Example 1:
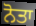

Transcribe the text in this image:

ਨੋਤਾ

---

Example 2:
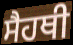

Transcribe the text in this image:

ਸੈਹਥੀ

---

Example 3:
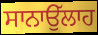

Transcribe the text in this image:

ਸਾਨਾਉੱਲਾਹ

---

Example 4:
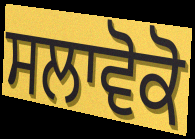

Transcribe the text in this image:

ਸਲਾਵੋਕੋ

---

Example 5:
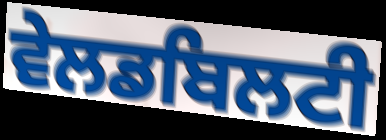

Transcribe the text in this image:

ਵੇਲਡਬਿਲਟੀ